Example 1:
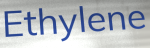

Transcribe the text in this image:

Ethylene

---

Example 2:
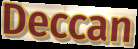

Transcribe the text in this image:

Deccan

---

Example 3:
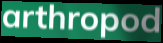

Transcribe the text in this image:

arthropod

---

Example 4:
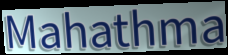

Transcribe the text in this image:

Mahathma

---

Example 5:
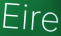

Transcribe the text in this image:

Eire